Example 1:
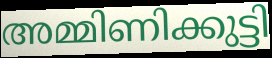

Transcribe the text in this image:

അമ്മിണിക്കുട്ടി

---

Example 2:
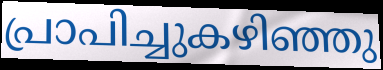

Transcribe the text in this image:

പ്രാപിച്ചുകഴിഞ്ഞു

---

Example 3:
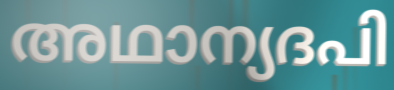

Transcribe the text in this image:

അഥാന്യദപി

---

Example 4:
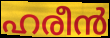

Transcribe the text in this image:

ഹരീൻ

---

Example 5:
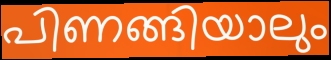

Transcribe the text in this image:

പിണങ്ങിയാലും